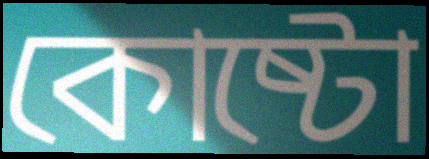
কোষ্টো